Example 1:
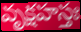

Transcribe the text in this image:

వృక్షహస్తః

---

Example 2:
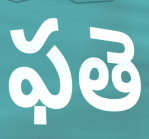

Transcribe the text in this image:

ఫతె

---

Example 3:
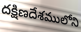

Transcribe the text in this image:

దక్షిణదేశములోని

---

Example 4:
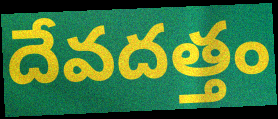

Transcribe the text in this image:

దేవదత్తం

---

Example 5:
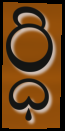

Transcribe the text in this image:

ర్ధి